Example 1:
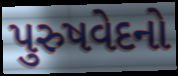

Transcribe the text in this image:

પુરુષવેદનો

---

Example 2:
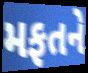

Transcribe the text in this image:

મફતને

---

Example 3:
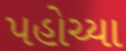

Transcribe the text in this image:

પહોચ્યા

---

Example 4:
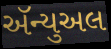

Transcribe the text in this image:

ઍન્યુઅલ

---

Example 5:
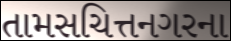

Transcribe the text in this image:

તામસચિત્તનગરના